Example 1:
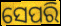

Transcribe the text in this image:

ସେପରି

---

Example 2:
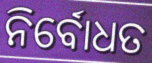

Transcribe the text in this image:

ନିର୍ବୋଧତ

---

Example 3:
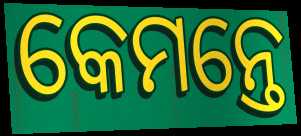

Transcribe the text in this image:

କେମନ୍ତେ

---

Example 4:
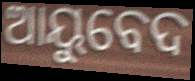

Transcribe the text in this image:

ଆୟୁବେଦ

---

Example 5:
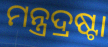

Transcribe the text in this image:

ମନ୍ତ୍ରଦ୍ରଷ୍ଟା